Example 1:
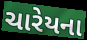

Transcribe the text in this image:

ચારેયના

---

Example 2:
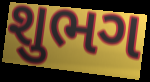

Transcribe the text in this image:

શુભગ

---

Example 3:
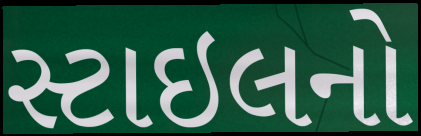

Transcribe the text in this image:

સ્ટાઇલનો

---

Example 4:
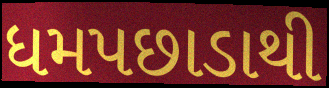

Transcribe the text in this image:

ધમપછાડાથી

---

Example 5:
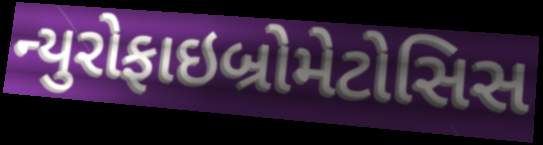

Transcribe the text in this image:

ન્યુરોફાઇબ્રોમેટોસિસ